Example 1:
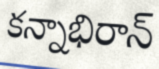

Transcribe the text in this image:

కన్నాభిరాన్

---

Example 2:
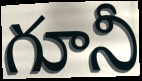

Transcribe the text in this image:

గూనీ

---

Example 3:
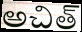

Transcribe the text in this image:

అచిత్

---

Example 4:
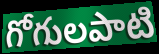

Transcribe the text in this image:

గోగులపాటి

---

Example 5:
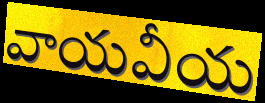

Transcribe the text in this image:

వాయవీయ